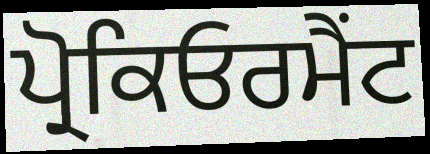
ਪ੍ਰੋਕਿਓਰਮੈਂਟ